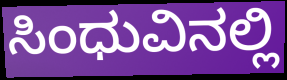
ಸಿಂಧುವಿನಲ್ಲಿ